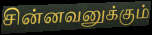
சின்னவனுக்கும்